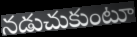
నడుచుకుంటూ